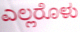
ಎಲ್ಲರೊಳು